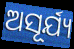
ଅସୂର୍ଯ୍ୟ